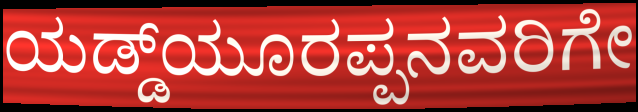
ಯಡ್ಡ್‌ಯೂರಪ್ಪನವರಿಗೇ